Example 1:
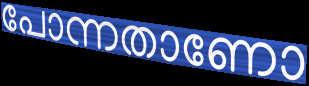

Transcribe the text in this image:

പോന്നതാണോ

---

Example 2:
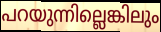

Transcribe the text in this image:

പറയുന്നില്ലെങ്കിലും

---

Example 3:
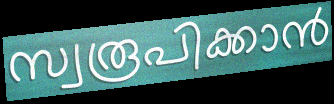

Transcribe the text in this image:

സ്വരൂപിക്കാൻ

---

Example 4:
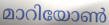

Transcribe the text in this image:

മാറിയോൺ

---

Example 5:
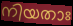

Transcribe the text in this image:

നിയതാഃ